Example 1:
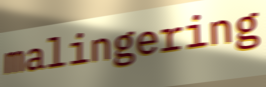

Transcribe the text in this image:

malingering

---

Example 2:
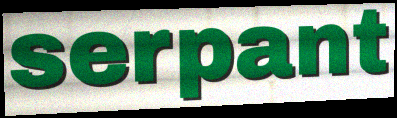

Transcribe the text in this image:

serpant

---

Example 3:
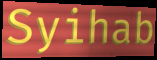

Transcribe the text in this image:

Syihab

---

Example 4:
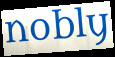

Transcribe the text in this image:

nobly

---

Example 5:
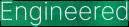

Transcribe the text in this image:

Engineered